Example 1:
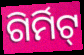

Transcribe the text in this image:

ଗିର୍ମିଟ୍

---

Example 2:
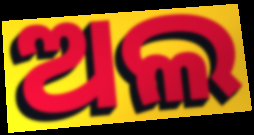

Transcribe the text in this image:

ଅଲ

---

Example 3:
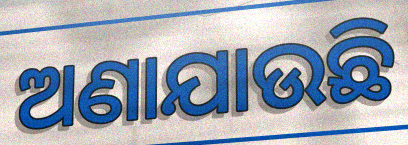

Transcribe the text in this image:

ଅଣାଯାଉଛି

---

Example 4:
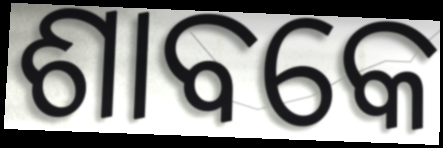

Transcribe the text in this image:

ଶାବକେ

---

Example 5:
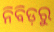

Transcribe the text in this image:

ନିବିଡ଼ରୁ